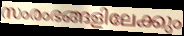
സംരംഭങ്ങളിലേക്കും